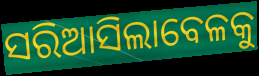
ସରିଆସିଲାବେଳକୁ